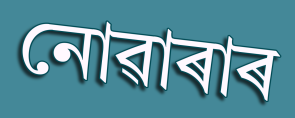
নোৱাৰাৰ